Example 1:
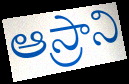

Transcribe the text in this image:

ఆస్రాని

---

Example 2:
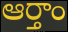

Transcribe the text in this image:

ఆర్తాం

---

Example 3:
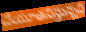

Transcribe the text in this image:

చేయూతనిస్తున్నది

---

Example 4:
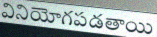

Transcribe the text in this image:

వినియోగపడతాయి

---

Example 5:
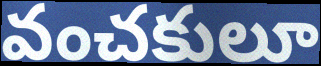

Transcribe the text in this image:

వంచకులూ